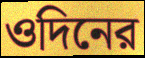
ওদিনের